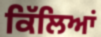
ਕਿੱਲਿਆਂ